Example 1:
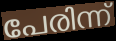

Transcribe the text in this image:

പേരിന്ന്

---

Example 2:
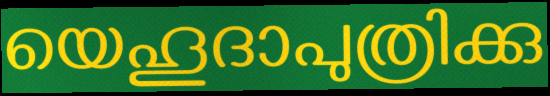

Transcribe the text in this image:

യെഹൂദാപുത്രിക്കു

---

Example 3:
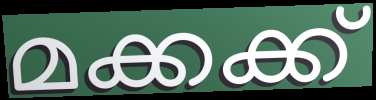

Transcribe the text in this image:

മക്കക്ക്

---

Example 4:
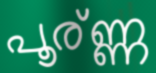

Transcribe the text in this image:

പൂര്ണ്ണ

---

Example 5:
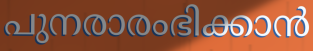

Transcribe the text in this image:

പുനരാരംഭിക്കാൻ